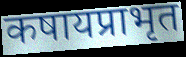
कषायप्राभृत